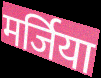
मर्जिया